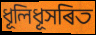
ধূলিধূসৰিত